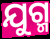
ଯୁଗ୍ମ